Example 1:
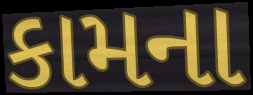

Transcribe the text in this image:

કામના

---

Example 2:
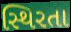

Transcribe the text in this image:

સ્થિરતા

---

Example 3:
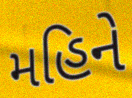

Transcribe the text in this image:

મહિને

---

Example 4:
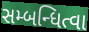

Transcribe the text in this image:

સમ્બન્ધિત્વા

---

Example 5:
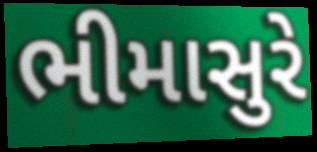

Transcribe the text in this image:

ભીમાસુરે